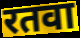
रतवा